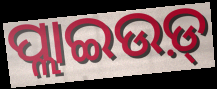
ପ୍ଲାଇଉଡ଼୍